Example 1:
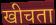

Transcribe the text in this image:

खीचता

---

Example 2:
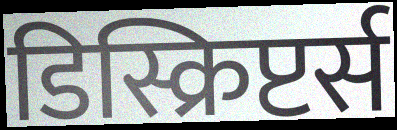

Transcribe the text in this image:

डिस्क्रिप्टर्स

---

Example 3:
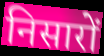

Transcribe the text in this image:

निसारों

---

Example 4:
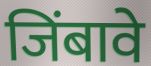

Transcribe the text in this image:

जिंबावे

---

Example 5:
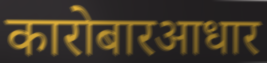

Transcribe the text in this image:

कारोबारआधार